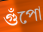
গুঁপো